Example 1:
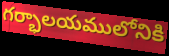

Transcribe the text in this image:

గర్భాలయములోనికి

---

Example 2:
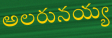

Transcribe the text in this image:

అలరునయ్య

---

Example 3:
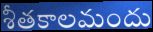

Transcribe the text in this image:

శీతకాలమందు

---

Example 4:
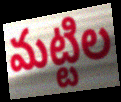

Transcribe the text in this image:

మట్టిల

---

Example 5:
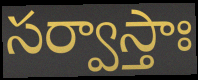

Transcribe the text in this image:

సర్వాస్తాః